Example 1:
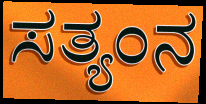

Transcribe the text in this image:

ಸತ್ಯಂನ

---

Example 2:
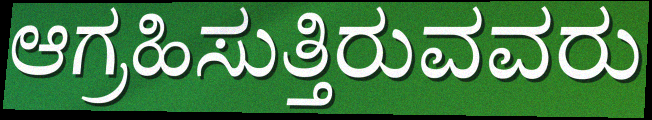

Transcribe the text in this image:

ಆಗ್ರಹಿಸುತ್ತಿರುವವರು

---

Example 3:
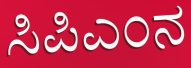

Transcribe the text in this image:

ಸಿಪಿಎಂನ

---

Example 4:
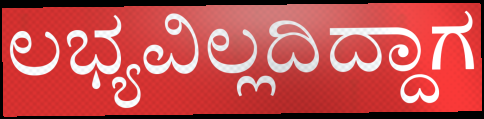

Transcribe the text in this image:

ಲಭ್ಯವಿಲ್ಲದಿದ್ದಾಗ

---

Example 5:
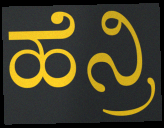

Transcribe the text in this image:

ಹೆನ್ರಿ